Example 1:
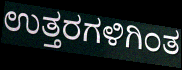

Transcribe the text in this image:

ಉತ್ತರಗಳಿಗಿಂತ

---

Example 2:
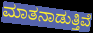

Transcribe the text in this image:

ಮಾತನಾಡುತ್ತಿವೆ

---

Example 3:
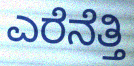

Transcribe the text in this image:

ಎರೆನೆತ್ತಿ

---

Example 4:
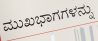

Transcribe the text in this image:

ಮುಖಭಾಗಗಳನ್ನು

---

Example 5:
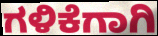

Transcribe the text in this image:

ಗಳಿಕೆಗಾಗಿ